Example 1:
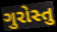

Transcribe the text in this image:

ગુરોસ્તુ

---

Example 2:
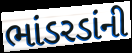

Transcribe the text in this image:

ભાંડરડાંની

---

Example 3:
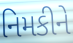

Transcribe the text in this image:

નિમકીને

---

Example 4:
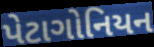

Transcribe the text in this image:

પેટાગોનિયન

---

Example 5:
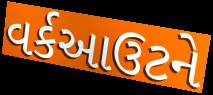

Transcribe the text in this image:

વર્કઆઉટને